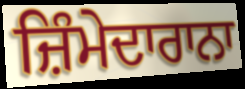
ਜ਼ਿੰਮੇਦਾਰਾਨਾ